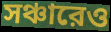
সঞ্চারেও